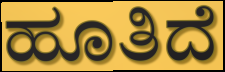
ಹೂತಿದೆ